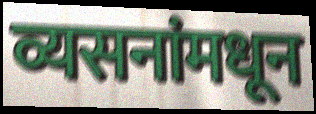
व्यसनांमधून